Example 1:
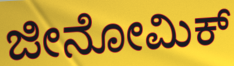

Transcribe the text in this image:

ಜೀನೋಮಿಕ್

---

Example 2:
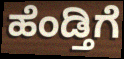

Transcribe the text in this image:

ಹೆಂಡ್ತಿಗೆ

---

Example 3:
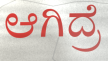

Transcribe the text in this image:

ಆಗಿದ್ರೆ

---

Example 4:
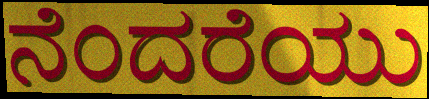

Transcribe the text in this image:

ನೆಂದರೆಯು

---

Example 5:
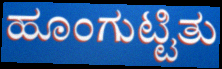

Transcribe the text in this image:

ಹೂಂಗುಟ್ಟಿತು